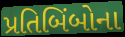
પ્રતિબિંબોના